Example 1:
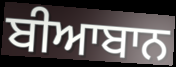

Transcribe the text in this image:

ਬੀਆਬਾਨ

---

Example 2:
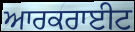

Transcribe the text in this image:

ਆਰਕਰਾਈਟ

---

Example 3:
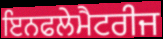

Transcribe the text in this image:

ਇਨਫਲੇਮੈਟਰੀਜ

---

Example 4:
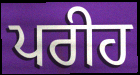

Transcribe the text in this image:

ਪਰੀਹ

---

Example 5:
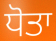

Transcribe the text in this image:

ਧੋਤਾ